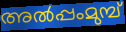
അൽപ്പംമുമ്പ്